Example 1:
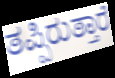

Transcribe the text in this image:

ತಪ್ಪಿರುತ್ತಾರೆ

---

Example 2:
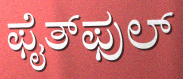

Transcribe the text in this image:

ಫೈತ್‌ಫುಲ್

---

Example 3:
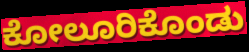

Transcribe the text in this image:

ಕೋಲೂರಿಕೊಂಡು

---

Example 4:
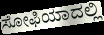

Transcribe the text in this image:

ಸೋಫಿಯಾದಲ್ಲಿ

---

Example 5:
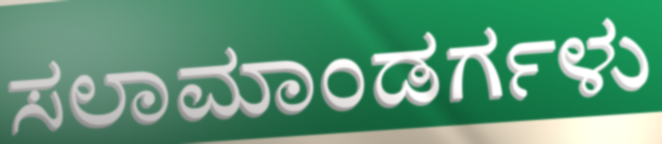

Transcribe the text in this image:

ಸಲಾಮಾಂಡರ್ಗಳು